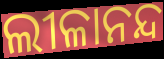
ଲୀଳାନନ୍ଦ